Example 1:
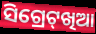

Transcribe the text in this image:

ସିଗ୍ରେଟ୍‌ଖିଆ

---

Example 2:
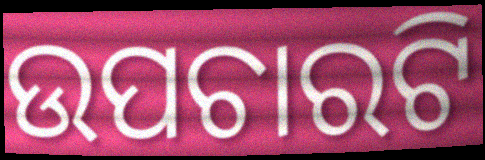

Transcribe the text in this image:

ଉପଚାରଟି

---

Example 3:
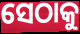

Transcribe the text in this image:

ସେଠାକୁ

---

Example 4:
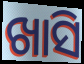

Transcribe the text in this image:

ଖାସି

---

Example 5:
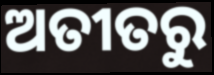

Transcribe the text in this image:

ଅତୀତରୁ